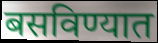
बसविण्यात